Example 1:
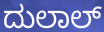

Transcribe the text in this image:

ದುಲಾಲ್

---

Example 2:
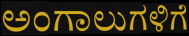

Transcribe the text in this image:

ಅಂಗಾಲುಗಳಿಗೆ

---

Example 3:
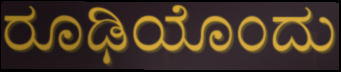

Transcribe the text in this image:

ರೂಢಿಯೊಂದು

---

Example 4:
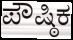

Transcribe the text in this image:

ಪೌಷ್ಠಿಕ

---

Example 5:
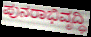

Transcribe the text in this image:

ಪುನರಾಭಿವೃದ್ಧಿ